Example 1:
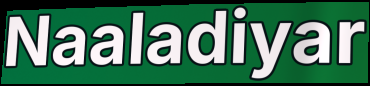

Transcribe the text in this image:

Naaladiyar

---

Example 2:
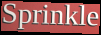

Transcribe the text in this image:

Sprinkle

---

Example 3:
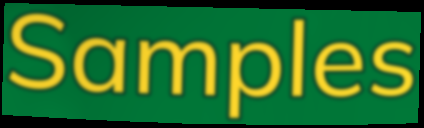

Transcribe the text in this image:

Samples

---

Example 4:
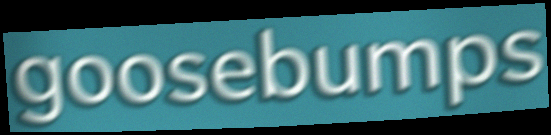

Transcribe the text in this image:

goosebumps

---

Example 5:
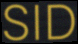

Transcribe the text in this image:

SID